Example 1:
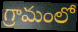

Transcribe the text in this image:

గ్రామంలో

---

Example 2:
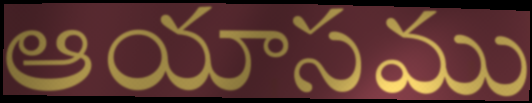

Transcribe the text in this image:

ఆయాసము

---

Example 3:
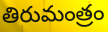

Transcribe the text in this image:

తిరుమంత్రం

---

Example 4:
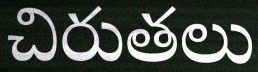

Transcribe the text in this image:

చిరుతలు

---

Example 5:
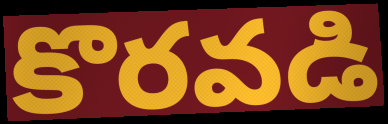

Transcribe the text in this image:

కొరవడి